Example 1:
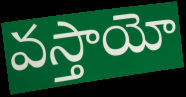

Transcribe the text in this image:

వస్తాయో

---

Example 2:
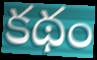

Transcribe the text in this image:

కథం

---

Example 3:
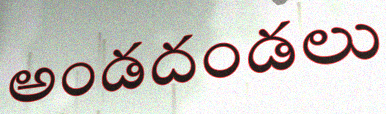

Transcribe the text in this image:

అండదండలు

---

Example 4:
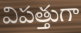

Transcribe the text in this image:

విపత్తుగా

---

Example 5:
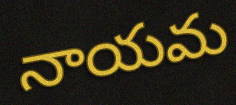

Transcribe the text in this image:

నాయమ